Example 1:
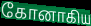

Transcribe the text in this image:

கோனாகிய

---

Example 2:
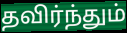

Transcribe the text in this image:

தவிர்ந்தும்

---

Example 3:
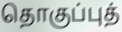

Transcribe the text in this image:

தொகுப்புத்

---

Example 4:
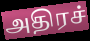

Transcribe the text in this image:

அதிரச்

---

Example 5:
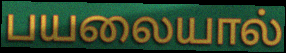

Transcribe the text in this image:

பயலையால்